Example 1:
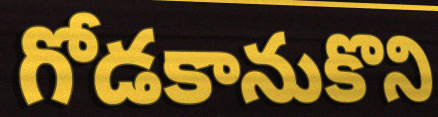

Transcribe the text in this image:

గోడకానుకొని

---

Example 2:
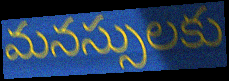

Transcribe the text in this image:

మనస్సులకు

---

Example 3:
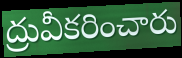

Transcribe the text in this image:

ద్రువీకరించారు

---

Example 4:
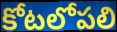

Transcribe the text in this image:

కోటలోపలి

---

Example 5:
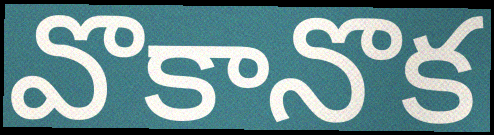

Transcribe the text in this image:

వొకానొక